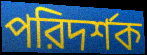
পরিদর্শক